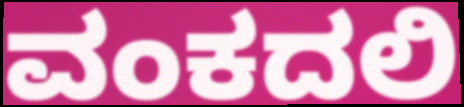
ವಂಕದಲಿ